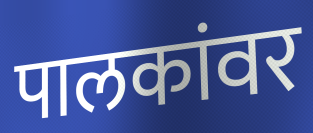
पालकांवर